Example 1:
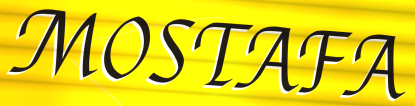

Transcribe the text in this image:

MOSTAFA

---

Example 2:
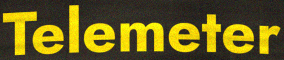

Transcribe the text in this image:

Telemeter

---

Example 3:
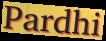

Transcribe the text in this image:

Pardhi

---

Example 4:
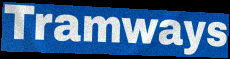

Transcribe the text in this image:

Tramways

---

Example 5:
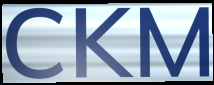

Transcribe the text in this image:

CKM